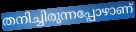
തനിച്ചിരുന്നപ്പോഴാണ്